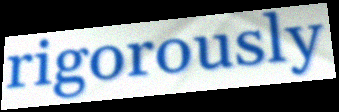
rigorously